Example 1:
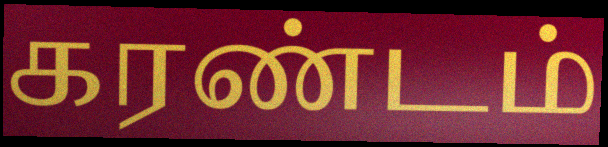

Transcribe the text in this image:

கரண்டம்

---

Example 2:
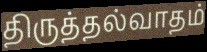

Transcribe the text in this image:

திருத்தல்வாதம்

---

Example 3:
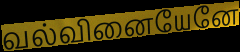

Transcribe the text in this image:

வல்வினையேனே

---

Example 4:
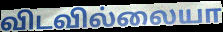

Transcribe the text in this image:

விடவில்லையா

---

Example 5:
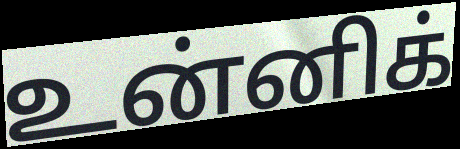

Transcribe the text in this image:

உன்னிக்